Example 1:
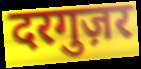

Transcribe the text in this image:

दरगुज़र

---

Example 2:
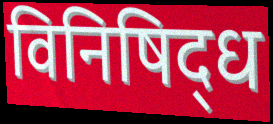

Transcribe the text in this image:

विनिषिद्ध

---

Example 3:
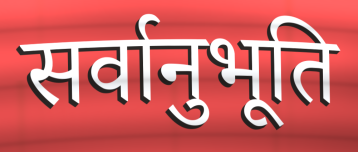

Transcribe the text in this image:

सर्वानुभूति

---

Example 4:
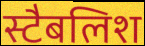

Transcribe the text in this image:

स्टैबलिश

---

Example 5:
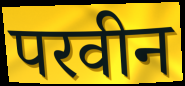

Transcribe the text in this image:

परवीन